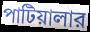
পাটিয়ালার